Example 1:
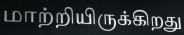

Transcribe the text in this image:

மாற்றியிருக்கிறது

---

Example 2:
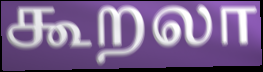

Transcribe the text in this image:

கூறலா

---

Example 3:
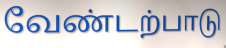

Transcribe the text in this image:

வேண்டற்பாடு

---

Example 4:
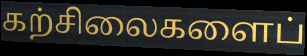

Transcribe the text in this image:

கற்சிலைகளைப்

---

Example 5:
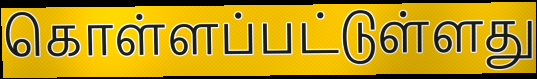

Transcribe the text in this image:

கொள்ளப்பட்டுள்ளது